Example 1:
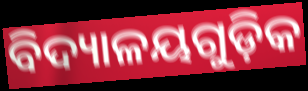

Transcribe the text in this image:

ବିଦ୍ୟାଳୟଗୁଡ଼ିକ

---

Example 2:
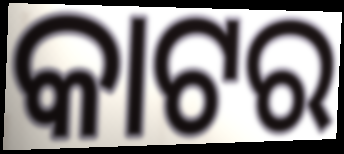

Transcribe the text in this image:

କାଟର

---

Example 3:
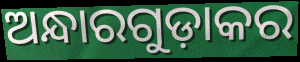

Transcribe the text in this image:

ଅନ୍ଧାରଗୁଡ଼ାକର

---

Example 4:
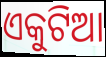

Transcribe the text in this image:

ଏକୁଟିଆ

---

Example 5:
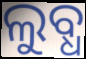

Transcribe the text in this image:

ଲୁବ୍ଧ